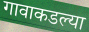
गावाकडल्या